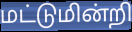
மட்டுமின்றி